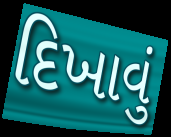
દિખાવું